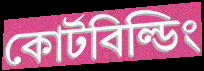
কোর্টবিল্ডিং